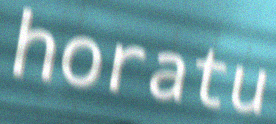
horatu